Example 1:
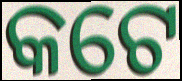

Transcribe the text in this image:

କଟେ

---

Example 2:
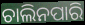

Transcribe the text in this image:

ଚାଲିନପାରି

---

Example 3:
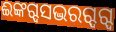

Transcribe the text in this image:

ଈଙ୍କଗ୍ଦସଦ୍ଭରଗ୍ଦଗ୍ଦ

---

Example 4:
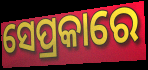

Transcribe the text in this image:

ସେପ୍ରକାରେ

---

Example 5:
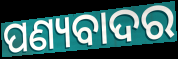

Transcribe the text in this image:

ପଣ୍ୟବାଦର